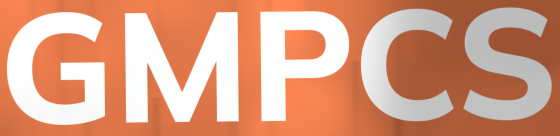
GMPCS